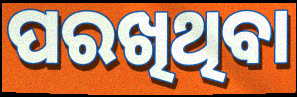
ପରଖିଥିବା